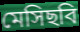
মেসিছবি